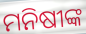
ମନିଷୀଙ୍କ